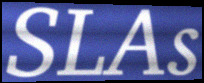
SLAs